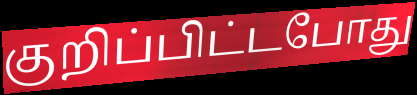
குறிப்பிட்டபோது